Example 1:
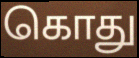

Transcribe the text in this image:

கொது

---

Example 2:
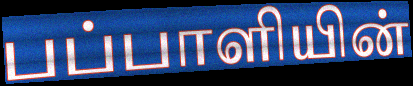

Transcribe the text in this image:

பப்பாளியின்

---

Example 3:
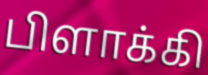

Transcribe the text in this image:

பிளாக்கி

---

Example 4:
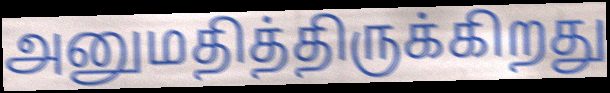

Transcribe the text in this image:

அனுமதித்திருக்கிறது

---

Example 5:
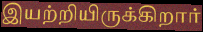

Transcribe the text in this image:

இயற்றியிருக்கிறார்